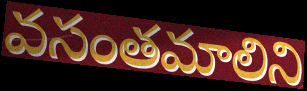
వసంతమాలిని